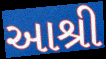
આશ્રી